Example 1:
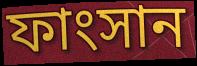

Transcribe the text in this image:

ফাংসান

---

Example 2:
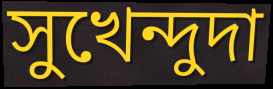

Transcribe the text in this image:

সুখেন্দুদা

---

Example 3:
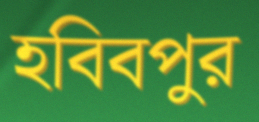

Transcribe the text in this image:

হবিবপুর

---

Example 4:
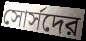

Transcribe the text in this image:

সোর্সদের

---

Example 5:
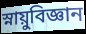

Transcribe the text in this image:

স্নায়ুবিজ্ঞান